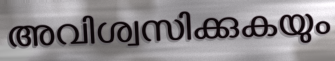
അവിശ്വസിക്കുകയും